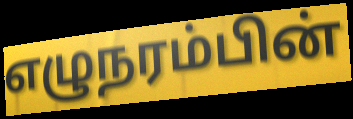
எழுநரம்பின்